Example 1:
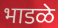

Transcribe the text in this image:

भाडळे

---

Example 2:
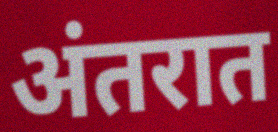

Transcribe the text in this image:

अंतरात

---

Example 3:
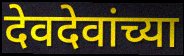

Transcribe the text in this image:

देवदेवांच्या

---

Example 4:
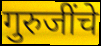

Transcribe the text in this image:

गुरुजींचे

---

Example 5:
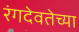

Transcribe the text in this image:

रंगदेवतेच्या